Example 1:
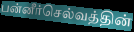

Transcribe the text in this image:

பன்னீர்செல்வத்தின்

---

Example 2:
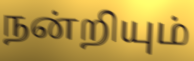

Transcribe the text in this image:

நன்றியும்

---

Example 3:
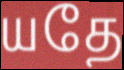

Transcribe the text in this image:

யதே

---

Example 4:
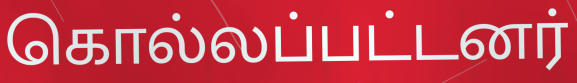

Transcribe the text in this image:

கொல்லப்பட்டனர்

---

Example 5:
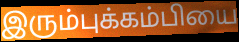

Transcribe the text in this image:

இரும்புக்கம்பியை